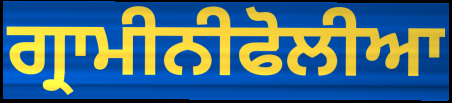
ਗ੍ਰਾਮੀਨੀਫੋਲੀਆ